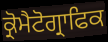
ਕ੍ਰੋਮੈਟੋਗ੍ਰਾਫਿਕ